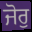
ਜੋਰੁ